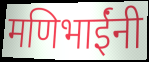
मणिभाईंनी